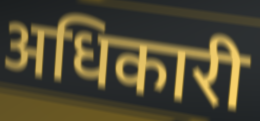
अधिकारी